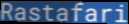
Rastafari